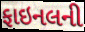
ફાઇનલની